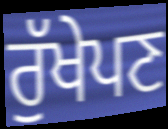
ਰੁੱਖੇਪਣ